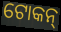
ଟୋକନ୍